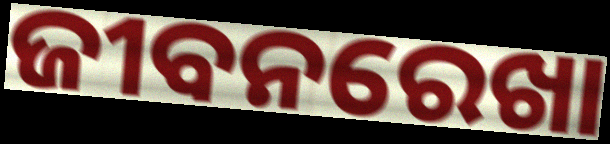
ଜୀବନରେଖା